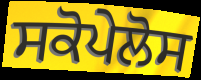
ਸਕੋਪੇਲੋਸ